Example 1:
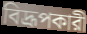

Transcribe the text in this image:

বিদ্রূপকারী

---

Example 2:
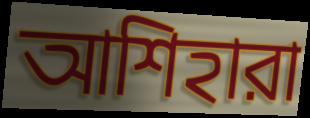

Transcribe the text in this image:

আশিহারা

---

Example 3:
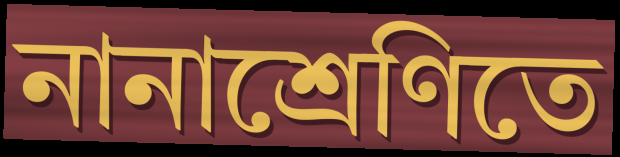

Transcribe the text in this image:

নানাশ্রেণিতে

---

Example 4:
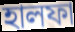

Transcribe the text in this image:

হালফা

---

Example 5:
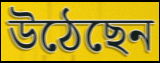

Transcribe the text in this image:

উঠেছেন